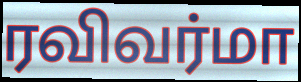
ரவிவர்மா